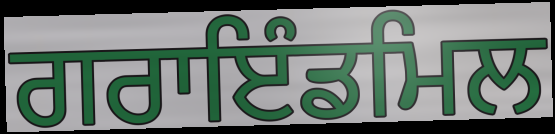
ਗਰਾਇੰਡਮਿਲ